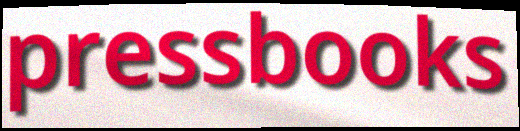
pressbooks